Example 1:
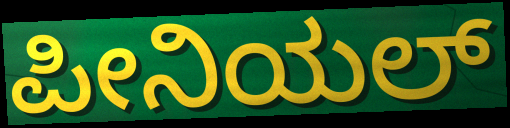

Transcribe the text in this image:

ಪೀನಿಯಲ್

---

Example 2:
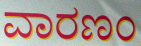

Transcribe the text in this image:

ವಾರಣಂ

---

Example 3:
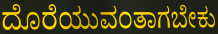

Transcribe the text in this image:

ದೊರೆಯುವಂತಾಗಬೇಕು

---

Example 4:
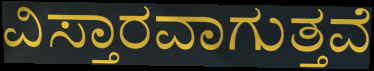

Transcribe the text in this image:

ವಿಸ್ತಾರವಾಗುತ್ತವೆ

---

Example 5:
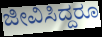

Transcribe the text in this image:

ಜೀವಿಸಿದ್ದರೂ